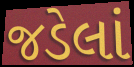
જડેલાં